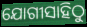
ଯୋଗୀସାହିଠୁ